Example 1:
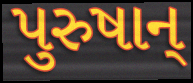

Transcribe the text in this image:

પુરુષાન્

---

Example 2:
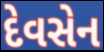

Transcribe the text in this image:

દેવસેન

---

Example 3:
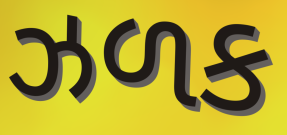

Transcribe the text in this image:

ઝળક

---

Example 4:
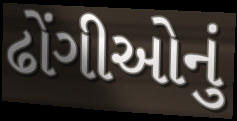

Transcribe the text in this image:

ઢોંગીઓનું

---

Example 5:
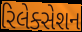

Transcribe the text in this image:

રિલેક્સેશન